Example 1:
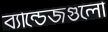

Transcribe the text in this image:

ব্যান্ডেজগুলো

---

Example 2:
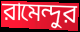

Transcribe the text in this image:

রামেন্দুর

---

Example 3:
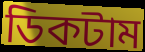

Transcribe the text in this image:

ডিকটাম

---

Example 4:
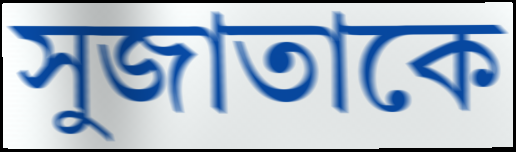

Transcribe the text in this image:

সুজাতাকে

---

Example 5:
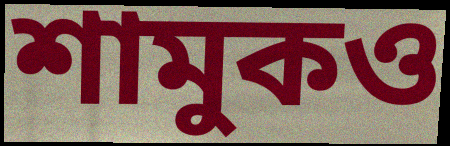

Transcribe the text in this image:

শামুকও